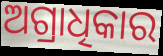
ଅଗ୍ରାଧିକାର